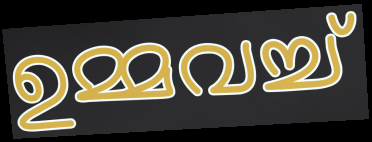
ഉമ്മവച്ച്